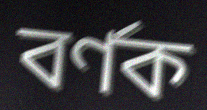
বৰ্ণক